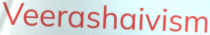
Veerashaivism